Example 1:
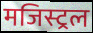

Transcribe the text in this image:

मजिस्ट्रल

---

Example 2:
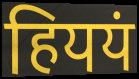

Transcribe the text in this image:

हिययं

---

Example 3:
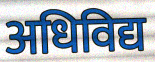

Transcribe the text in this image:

अधिविद्य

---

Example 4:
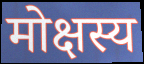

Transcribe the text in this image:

मोक्षस्य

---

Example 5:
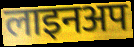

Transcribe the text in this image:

लाइनअप